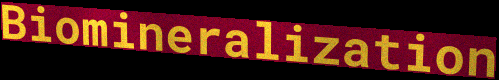
Biomineralization